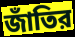
জাঁতির